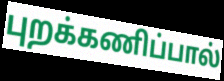
புறக்கணிப்பால்